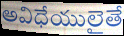
అవిధేయులైతే